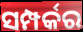
ସମ୍ପର୍କର